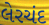
લેરચંદ